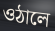
ওঠালে